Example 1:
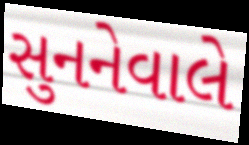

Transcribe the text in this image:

સુનનેવાલે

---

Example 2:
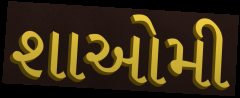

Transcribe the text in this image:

શાઓમી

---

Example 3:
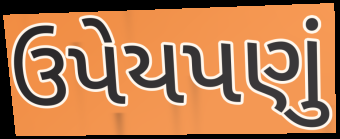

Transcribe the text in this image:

ઉપેયપણું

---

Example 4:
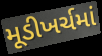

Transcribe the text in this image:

મૂડીખર્ચમાં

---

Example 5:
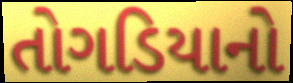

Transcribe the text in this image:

તોગડિયાનો